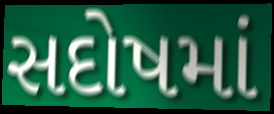
સદોષમાં